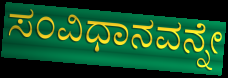
ಸಂವಿಧಾನವನ್ನೇ